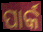
ପାର୍କ